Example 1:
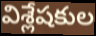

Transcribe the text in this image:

విశ్లేషకుల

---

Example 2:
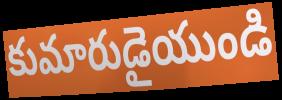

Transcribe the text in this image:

కుమారుడైయుండి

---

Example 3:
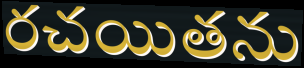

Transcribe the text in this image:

రచయితను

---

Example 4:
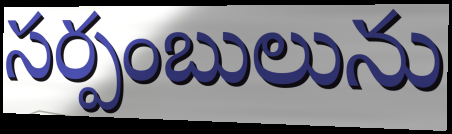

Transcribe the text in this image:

సర్పంబులును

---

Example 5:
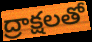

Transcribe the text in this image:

ద్రాక్షలతో